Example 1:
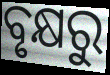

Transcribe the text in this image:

ବୃକ୍ଷରୁ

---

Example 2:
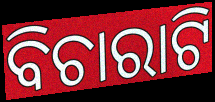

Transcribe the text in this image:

ବିଚାରାଟି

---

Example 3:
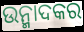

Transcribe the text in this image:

ଉନ୍ମାଦକର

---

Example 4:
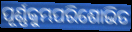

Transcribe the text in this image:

ପୂର୍ଣ୍ଣକୁମ୍ଭପରିଶୋଭିତ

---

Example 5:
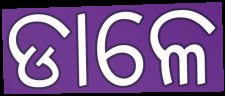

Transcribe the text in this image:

ଡାଳେ